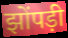
झोंपड़ी